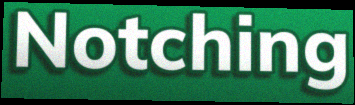
Notching